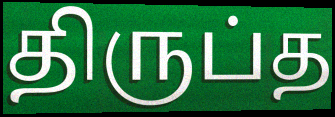
திருப்த